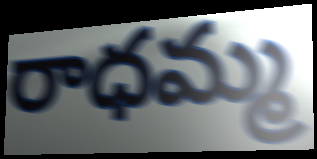
రాధమ్మ